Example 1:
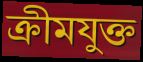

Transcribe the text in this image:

ক্ৰীমযুক্ত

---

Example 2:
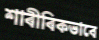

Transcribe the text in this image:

শাৰীৰিকভাবে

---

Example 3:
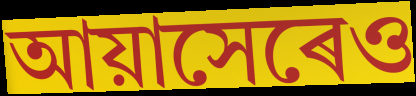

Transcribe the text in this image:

আয়াসেৰেও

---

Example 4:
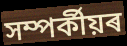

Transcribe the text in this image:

সম্পৰ্কীয়ৰ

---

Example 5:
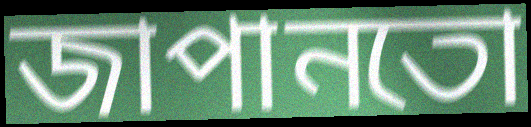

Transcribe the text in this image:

জাপানতো